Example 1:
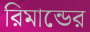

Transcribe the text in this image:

রিমান্ডের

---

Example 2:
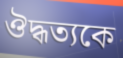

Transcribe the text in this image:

ঔদ্ধত্যকে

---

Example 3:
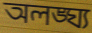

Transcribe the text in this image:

অলঙ্ঘ্য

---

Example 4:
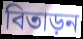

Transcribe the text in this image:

বিতাড়ন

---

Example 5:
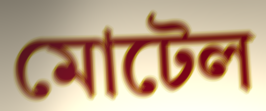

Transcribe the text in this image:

মোটেল